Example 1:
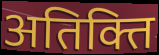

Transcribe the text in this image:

अतिक्ति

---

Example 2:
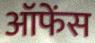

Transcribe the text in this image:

ऑफेंस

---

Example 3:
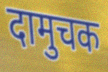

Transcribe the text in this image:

दामुचक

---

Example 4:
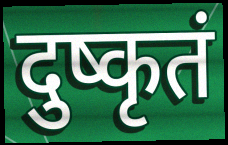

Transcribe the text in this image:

दुष्कृतं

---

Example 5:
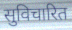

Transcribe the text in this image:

सुविचारित